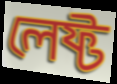
লেফ্ট